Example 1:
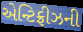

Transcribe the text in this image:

એન્ટિફ્રીઝની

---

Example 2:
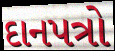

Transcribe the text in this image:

દાનપત્રો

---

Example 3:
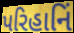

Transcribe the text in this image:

પરિહાનિં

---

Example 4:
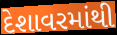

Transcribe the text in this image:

દેશાવરમાંથી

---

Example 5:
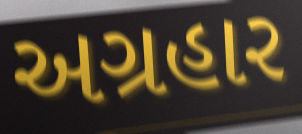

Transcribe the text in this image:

અગ્રહાર